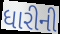
ધારીની